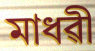
মাধৱী